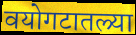
वयोगटातल्या